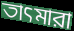
তাৎমারা